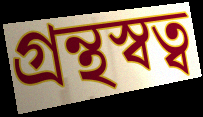
গ্রন্থস্বত্ব